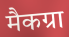
मैकग्रा